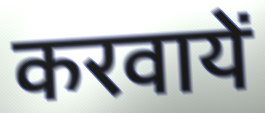
करवायें